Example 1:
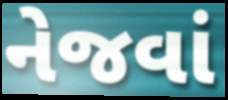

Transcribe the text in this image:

નેજવાં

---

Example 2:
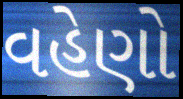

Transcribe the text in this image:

વહેણો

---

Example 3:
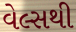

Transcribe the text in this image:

વેલ્સથી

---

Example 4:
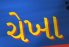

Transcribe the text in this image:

ચેખા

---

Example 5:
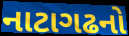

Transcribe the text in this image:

નાટાગઢનો